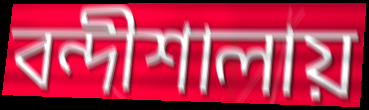
বন্দীশালায়